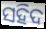
ସହିଦ